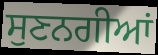
ਸੁਣਨਗੀਆਂ